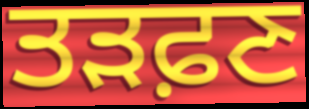
ਤੜਫ਼ਣ